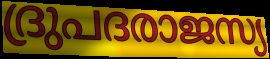
ദ്രുപദരാജസ്യ